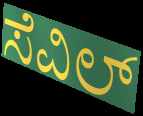
ಸೆವಿಲ್